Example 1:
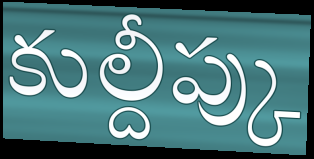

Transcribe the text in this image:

కుల్దీప్కు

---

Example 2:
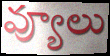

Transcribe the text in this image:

వ్యూలు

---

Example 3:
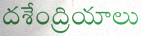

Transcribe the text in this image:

దశేంద్రియాలు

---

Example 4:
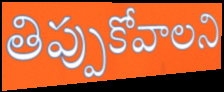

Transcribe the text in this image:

తిప్పుకోవాలని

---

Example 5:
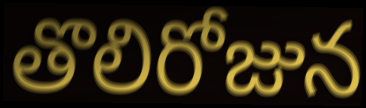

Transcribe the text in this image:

తొలిరోజున